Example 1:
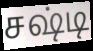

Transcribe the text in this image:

சஷ்டி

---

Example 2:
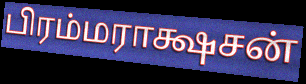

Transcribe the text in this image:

பிரம்மராக்ஷசன்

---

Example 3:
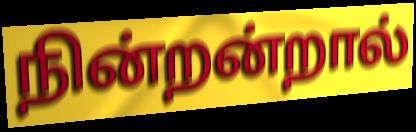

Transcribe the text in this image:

நின்றன்றால்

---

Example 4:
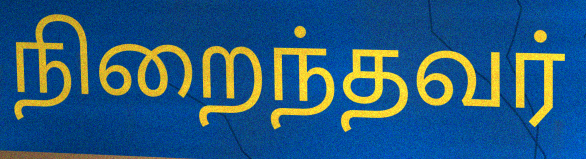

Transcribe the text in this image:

நிறைந்தவர்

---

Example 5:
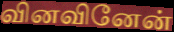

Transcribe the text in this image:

வினவினேன்